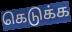
கெடுக்க